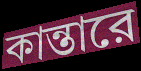
কান্তারে